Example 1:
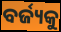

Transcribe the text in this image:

ବର୍ଜ୍ୟକୁ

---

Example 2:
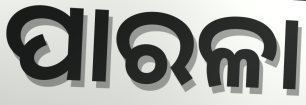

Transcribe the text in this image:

ପାରଳା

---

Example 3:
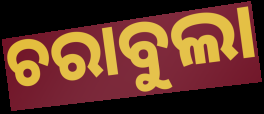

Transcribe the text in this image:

ଚରାବୁଲା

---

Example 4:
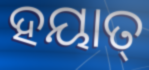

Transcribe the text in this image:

ହୟାତ୍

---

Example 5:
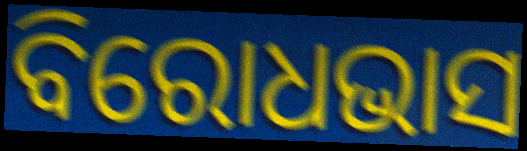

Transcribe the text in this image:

ବିରୋଧଭାସ